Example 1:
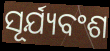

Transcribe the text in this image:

ସୂର୍ଯ୍ୟବଂଶ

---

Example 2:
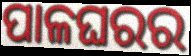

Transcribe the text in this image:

ପାଳଘରର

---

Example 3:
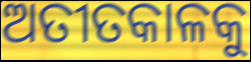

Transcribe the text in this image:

ଅତୀତକାଳକୁ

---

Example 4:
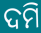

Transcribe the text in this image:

ଦମି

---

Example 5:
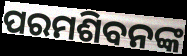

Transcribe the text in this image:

ପରମଶିବନଙ୍କ